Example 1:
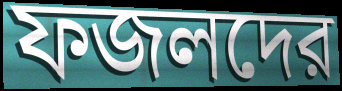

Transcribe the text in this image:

ফজলদের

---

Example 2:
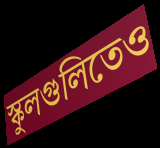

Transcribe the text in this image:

স্কুলগুলিতেও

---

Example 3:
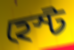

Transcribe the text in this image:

হেস্ট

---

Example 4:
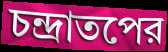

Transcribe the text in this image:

চন্দ্রাতপের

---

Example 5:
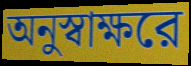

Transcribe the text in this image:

অনুস্বাক্ষরে